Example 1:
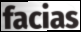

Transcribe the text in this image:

facias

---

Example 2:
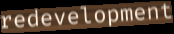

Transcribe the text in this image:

redevelopment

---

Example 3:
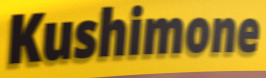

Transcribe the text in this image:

Kushimone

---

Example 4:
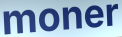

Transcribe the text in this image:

moner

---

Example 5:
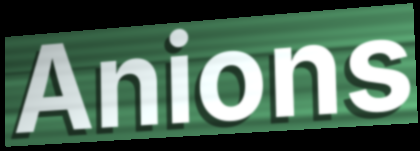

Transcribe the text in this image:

Anions